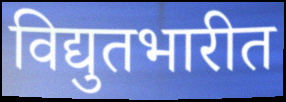
विद्युतभारीत